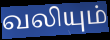
வலியும்